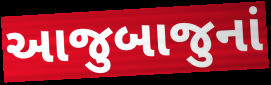
આજુબાજુનાં